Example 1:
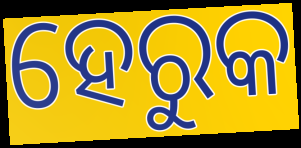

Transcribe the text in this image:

ହେରୁକ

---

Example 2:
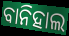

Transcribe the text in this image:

ବାନିହାଲ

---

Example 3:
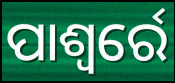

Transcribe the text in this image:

ପାଶ୍ୱର୍ରେ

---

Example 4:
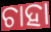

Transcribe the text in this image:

ଚାହା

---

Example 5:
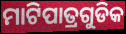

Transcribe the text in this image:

ମାଟିପାତ୍ରଗୁଡିକ